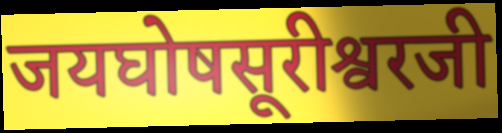
जयघोषसूरीश्वरजी